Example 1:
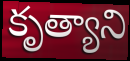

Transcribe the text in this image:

కృత్యాని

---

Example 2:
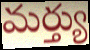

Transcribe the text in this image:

మర్త్యు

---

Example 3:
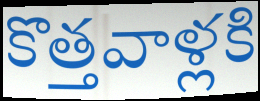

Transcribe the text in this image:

కొత్తవాళ్లకి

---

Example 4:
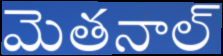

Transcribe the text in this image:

మెతనాల్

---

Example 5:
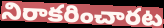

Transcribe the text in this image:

నిరాకరించారట